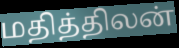
மதித்திலன்